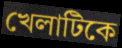
খেলাটিকে